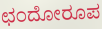
ಛಂದೋರೂಪ